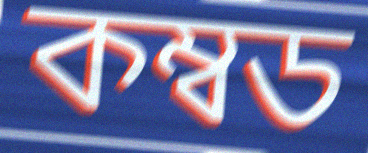
কম্বড